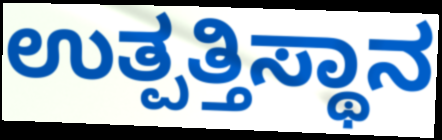
ಉತ್ಪತ್ತಿಸ್ಥಾನ